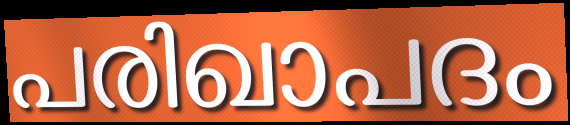
പരിഖാപദം